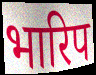
भारिप